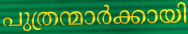
പുത്രന്മാർക്കായി